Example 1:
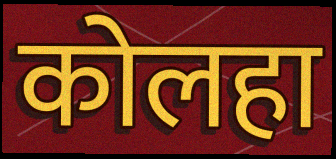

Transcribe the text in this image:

कोलहा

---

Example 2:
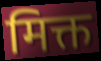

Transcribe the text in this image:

मिक्त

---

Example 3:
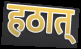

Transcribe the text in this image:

हठात्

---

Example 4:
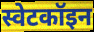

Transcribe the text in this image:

स्वेटकॉइन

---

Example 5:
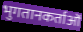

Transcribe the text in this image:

भुगतानकर्ताओं